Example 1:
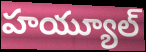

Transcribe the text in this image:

హయ్యూల్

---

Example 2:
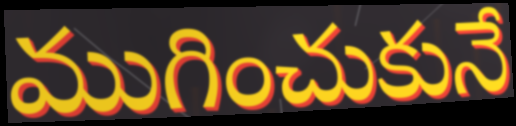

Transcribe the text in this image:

ముగించుకునే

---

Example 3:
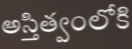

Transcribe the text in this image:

అస్తిత్వంలోకి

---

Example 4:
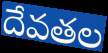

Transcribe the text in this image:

దేవతల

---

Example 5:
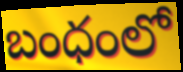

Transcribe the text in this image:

బంధంలో